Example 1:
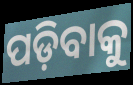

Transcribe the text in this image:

ପଡ଼ିବାକୁ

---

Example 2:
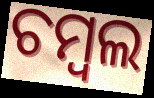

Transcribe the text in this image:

ଚମ୍ବଲ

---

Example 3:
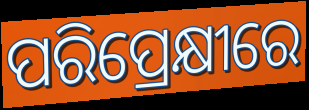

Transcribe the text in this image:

ପରିପ୍ରେକ୍ଷୀରେ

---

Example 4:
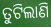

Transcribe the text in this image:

ତୁଟିଲାଣି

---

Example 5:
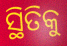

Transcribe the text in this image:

ସ୍ଥିତିକୁ